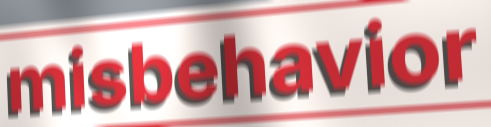
misbehavior